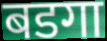
बडगा